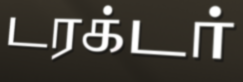
டரக்டர்